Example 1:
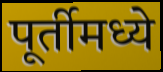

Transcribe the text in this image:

पूर्तीमध्ये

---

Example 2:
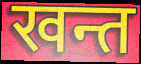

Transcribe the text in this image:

खन्त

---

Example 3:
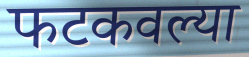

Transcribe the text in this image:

फटकवल्या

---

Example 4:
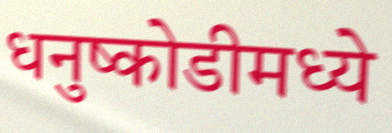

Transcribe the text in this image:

धनुष्कोडीमध्ये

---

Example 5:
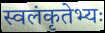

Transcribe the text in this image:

स्वलंकृतेभ्यः